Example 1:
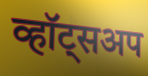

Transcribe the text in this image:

व्हॉट्सअप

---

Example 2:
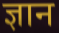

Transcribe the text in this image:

ज्ञान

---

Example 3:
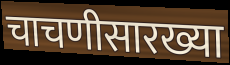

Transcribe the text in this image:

चाचणीसारख्या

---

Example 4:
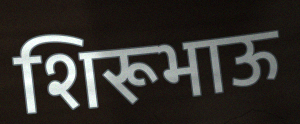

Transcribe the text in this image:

शिरूभाऊ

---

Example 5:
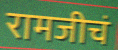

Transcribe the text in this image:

रामजीचं